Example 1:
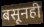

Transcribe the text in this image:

बसूनही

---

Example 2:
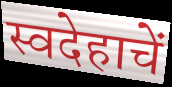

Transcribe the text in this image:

स्वदेहाचें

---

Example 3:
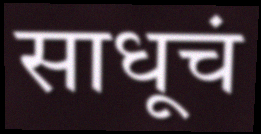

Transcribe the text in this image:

साधूचं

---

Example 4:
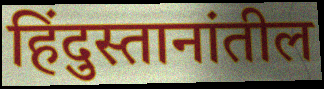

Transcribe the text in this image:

हिंदुस्तानांतील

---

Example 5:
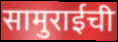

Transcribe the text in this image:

सामुराईची